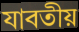
যাবতীয়